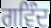
ਗਵਿੰਦ